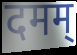
दमम्